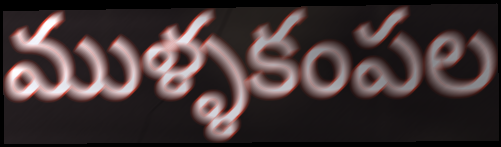
ముళ్ళకంపల